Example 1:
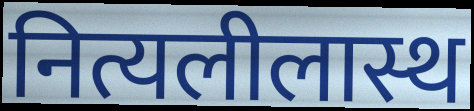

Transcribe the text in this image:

नित्यलीलास्थ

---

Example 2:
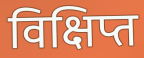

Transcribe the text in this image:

विक्षिप्त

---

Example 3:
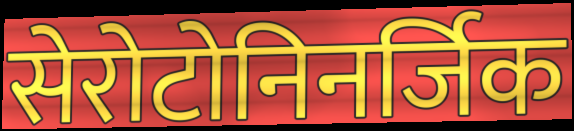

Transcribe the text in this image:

सेरोटोनिनर्जिक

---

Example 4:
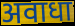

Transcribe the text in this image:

अवाधा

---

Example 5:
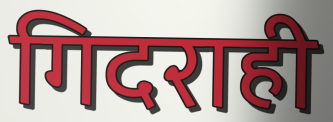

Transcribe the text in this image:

गिदराही